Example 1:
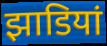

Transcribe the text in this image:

झाडियां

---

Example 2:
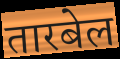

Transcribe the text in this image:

तारबेल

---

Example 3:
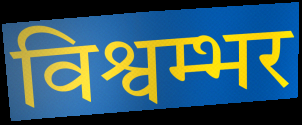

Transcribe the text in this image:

विश्वम्भर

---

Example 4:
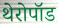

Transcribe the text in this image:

थेरोपॉड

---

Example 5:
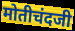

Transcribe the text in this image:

मोतीचंदजी